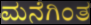
ಮನೆಗಿಂತ